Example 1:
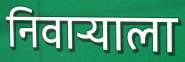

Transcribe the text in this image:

निवाऱ्याला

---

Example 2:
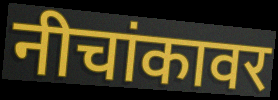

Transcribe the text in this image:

नीचांकावर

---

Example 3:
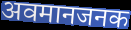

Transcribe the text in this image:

अवमानजनक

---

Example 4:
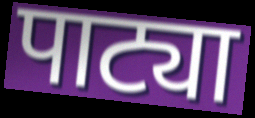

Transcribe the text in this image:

पाट्या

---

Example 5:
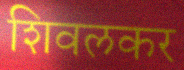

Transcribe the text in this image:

शिवलकर